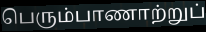
பெரும்பாணாற்றுப்